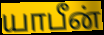
யாபீன்